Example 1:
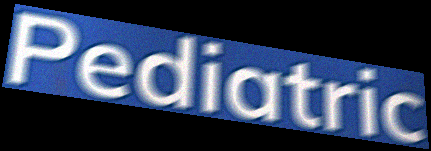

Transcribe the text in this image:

Pediatric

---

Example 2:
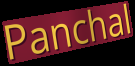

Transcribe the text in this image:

Panchal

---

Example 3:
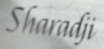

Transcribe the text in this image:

Sharadji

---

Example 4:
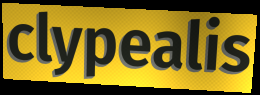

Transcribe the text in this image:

clypealis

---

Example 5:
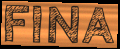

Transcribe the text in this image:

FINA